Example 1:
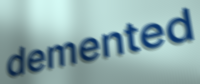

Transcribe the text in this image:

demented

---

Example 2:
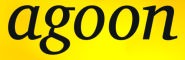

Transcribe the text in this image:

agoon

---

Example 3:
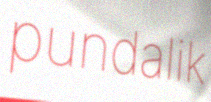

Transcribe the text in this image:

pundalik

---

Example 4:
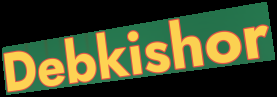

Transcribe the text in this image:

Debkishor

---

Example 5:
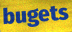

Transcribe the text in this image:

bugets